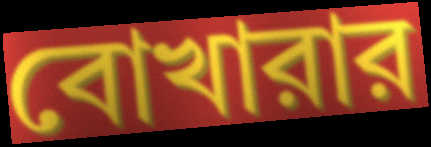
বোখারার